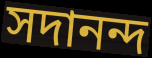
সদানন্দ